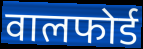
वालफोर्ड